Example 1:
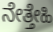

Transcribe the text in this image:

ನೇತ್ತೇಹಿ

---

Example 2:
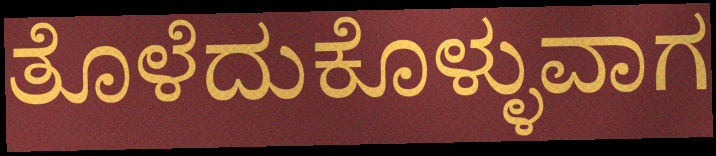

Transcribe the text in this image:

ತೊಳೆದುಕೊಳ್ಳುವಾಗ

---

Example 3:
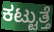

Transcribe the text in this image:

ಕಟ್ಟುತ್ತೆ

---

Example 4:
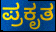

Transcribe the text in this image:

ಪ್ರಕೃತ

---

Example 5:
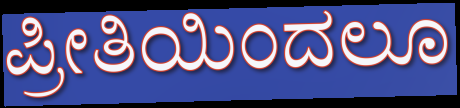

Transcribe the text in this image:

ಪ್ರೀತಿಯಿಂದಲೂ